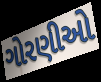
ગોરણીઓ